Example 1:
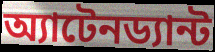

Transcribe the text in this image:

অ্যাটেনড্যান্ট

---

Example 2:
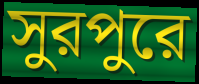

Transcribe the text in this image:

সুরপুরে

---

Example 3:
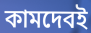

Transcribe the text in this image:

কামদেবই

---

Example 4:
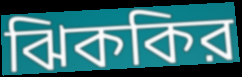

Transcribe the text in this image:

ঝিককির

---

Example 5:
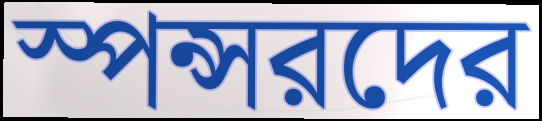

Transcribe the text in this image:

স্পন্সরদের